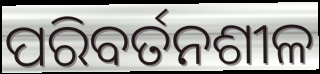
ପରିବର୍ତନଶୀଳ